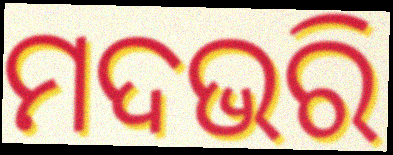
ମଦଭରି